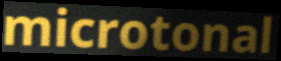
microtonal